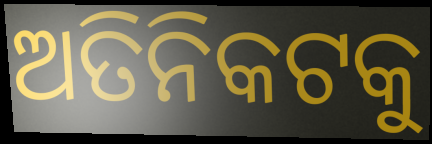
ଅତିନିକଟକୁ